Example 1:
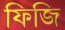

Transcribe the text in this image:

ফিজি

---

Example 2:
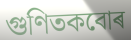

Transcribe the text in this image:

গুণিতকবোৰ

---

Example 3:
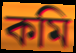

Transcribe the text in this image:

কমি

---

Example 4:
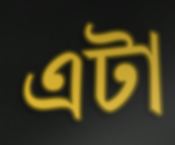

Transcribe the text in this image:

এটা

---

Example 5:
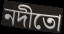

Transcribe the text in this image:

নদীতো